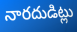
నారదుడిట్లు